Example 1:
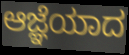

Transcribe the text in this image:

ಆಜ್ಞೆಯಾದ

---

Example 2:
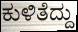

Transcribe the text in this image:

ಕುಳಿತೆದ್ದು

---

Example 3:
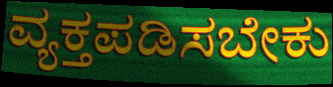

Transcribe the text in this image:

ವ್ಯಕ್ತಪಡಿಸಬೇಕು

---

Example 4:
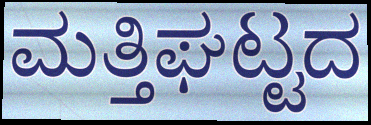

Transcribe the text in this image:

ಮತ್ತಿಘಟ್ಟದ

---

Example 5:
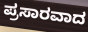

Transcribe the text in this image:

ಪ್ರಸಾರವಾದ